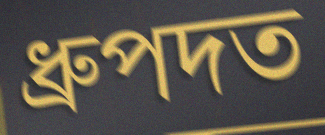
ধ্ৰুপদত